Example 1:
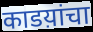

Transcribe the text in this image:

काडय़ांचा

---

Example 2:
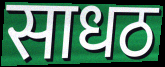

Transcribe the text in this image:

साधठ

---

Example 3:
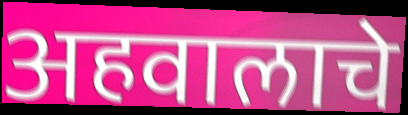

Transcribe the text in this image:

अहवालाचे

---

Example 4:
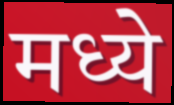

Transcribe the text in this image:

मध्ये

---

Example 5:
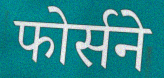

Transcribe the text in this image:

फोर्सने